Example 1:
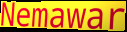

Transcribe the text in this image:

Nemawar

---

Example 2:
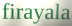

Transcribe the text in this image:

firayala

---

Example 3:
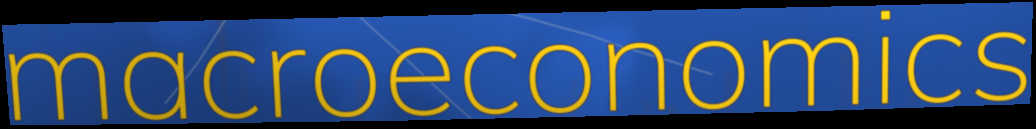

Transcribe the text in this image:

macroeconomics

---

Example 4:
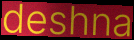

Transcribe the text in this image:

deshna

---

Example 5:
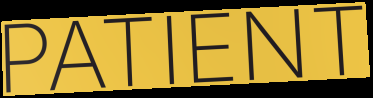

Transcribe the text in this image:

PATIENT